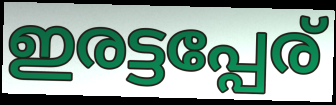
ഇരട്ടപ്പേര്